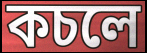
কচলে